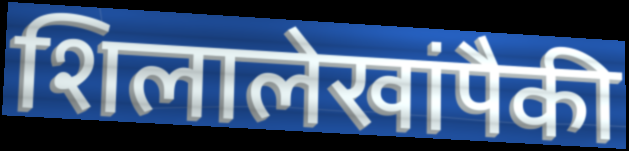
शिलालेखांपैकी